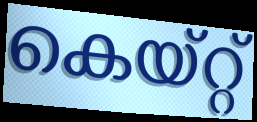
കെയ്റ്റ്